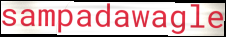
sampadawagle